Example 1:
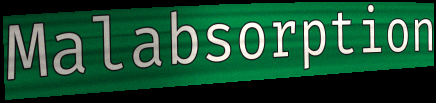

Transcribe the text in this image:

Malabsorption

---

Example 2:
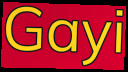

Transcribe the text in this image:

Gayi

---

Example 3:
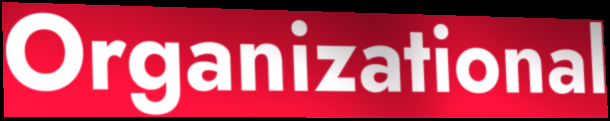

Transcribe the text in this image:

Organizational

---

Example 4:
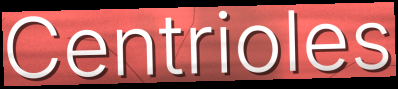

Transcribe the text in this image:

Centrioles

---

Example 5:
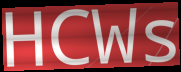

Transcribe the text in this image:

HCWs